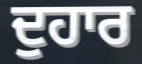
ਦੁਹਾਰ